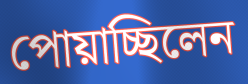
পোয়াচ্ছিলেন